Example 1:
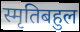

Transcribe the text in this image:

स्मृतिबहुल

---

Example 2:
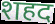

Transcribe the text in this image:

शहद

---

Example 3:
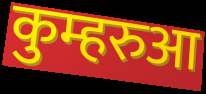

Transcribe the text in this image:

कुम्हरुआ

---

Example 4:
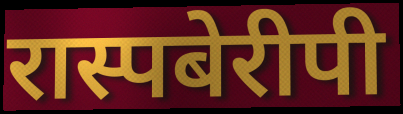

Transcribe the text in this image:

रास्पबेरीपी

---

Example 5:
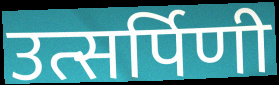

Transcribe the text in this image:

उत्सर्पिणी